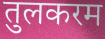
तुलकरम